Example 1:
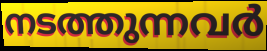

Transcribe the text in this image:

നടത്തുന്നവർ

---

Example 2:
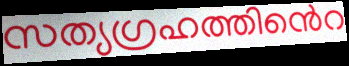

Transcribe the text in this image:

സത്യഗ്രഹത്തിൻെറ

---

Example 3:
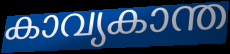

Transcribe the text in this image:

കാവ്യകാന്ത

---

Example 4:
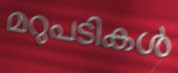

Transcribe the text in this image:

മറുപടികൾ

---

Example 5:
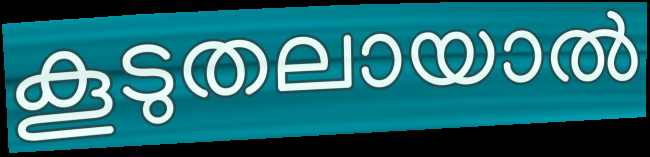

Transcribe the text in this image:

കൂടുതലായാൽ